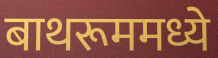
बाथरूममध्ये